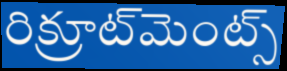
రిక్రూట్‌మెంట్స్